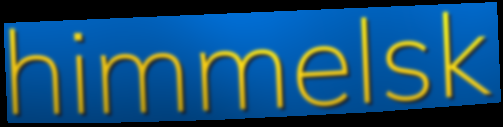
himmelsk